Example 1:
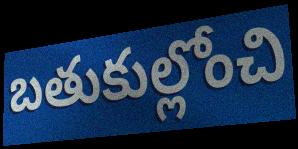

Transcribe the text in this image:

బతుకుల్లోంచి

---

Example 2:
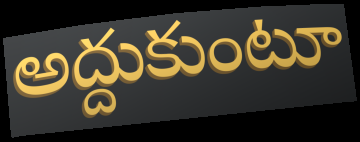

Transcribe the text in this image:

అద్దుకుంటూ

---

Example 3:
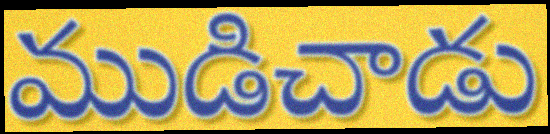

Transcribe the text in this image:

ముడిచాడు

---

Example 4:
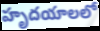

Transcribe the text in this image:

హృదయాలలో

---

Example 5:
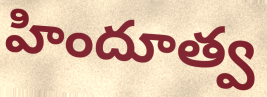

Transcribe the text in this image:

హిందూత్వ